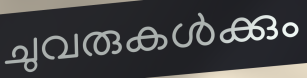
ചുവരുകൾക്കും